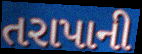
તરાપાની